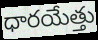
ధారయేత్తు